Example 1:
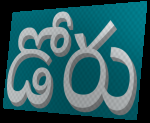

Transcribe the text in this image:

డోరు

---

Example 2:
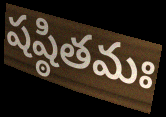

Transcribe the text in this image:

షష్ఠితమః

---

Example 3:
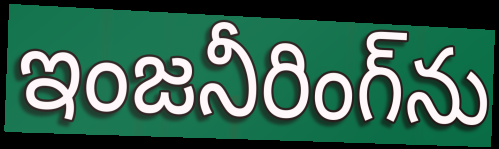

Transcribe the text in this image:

ఇంజనీరింగ్‌ను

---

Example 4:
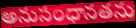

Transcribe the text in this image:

అనుసంధానతను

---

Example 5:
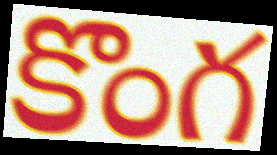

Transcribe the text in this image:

కొంగ